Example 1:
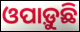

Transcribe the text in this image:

ଓପାଡ଼ୁଛି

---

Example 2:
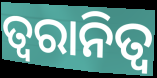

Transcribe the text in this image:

ତ୍ୱରାନିତ୍ଵ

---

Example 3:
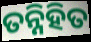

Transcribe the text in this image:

ତନ୍ନିହିତ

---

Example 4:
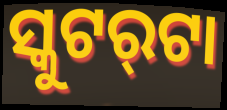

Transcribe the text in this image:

ସ୍କୁଟର୍‌ଟା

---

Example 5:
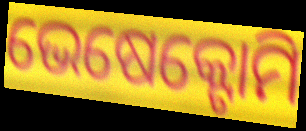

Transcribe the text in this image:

ଭେଷେକ୍ଟୋମି